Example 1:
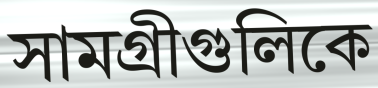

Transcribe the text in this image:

সামগ্রীগুলিকে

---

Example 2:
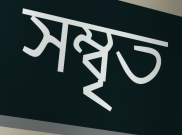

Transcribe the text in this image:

সম্বৃত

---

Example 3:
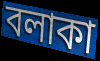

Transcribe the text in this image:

বলাকা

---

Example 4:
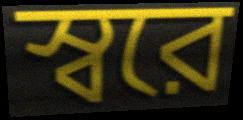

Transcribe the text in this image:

স্বরে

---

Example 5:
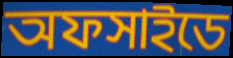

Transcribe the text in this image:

অফসাইডে